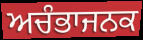
ਅਚੰਭਾਜਨਕ